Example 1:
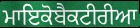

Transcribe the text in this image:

ਮਾਇਕੋਬੈਕਟੀਰੀਆ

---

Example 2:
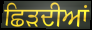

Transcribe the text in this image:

ਛਿੜਦੀਆਂ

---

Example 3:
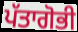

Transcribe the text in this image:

ਪੱਤਾਗੋਭੀ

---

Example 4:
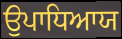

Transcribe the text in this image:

ਉਪਾਧਿਆਯ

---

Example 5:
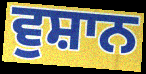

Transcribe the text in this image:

ਵੁਸ਼ਾਨ